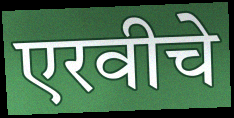
एरवीचे